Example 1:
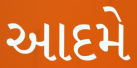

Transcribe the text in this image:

આદમે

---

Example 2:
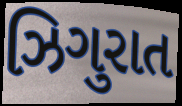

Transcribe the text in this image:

ઝિગુરાત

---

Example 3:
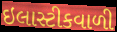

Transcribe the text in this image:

ઇલાસ્ટીકવાળી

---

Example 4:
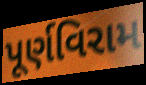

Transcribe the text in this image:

પૂર્ણવિરામ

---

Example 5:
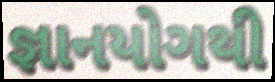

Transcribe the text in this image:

જ્ઞાનયોગથી